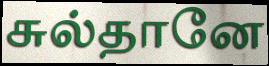
சுல்தானே